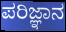
ಪರಿಜ್ಞಾನ